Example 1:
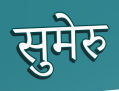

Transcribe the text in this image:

सुमेरु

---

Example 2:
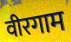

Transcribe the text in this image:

वीरगाम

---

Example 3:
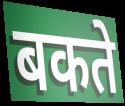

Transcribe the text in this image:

बकते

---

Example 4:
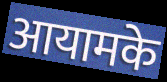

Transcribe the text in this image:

आयामके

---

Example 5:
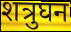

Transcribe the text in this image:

शत्रुघन